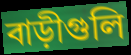
বাড়ীগুলি